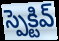
స్పెక్టివ్